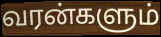
வரன்களும்